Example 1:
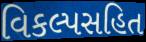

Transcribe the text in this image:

વિકલ્પસહિત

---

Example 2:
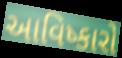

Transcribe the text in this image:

આવિષ્કારો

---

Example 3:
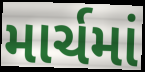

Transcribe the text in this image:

માર્ચમાં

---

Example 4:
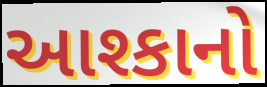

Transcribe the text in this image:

આશ્કાનો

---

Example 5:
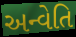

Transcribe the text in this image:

અન્વેતિ